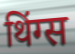
थिंग्स